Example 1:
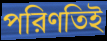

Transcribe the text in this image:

পরিণতিই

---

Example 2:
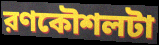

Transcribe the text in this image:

রণকৌশলটা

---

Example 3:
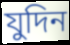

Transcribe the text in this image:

যুদিন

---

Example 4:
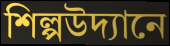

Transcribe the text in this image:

শিল্পউদ্যানে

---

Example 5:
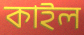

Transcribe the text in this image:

কাইল